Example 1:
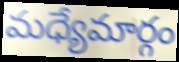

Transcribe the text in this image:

మధ్యేమార్గం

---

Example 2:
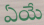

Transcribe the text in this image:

ఏయే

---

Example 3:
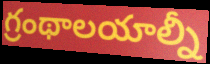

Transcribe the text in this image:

గ్రంథాలయాల్నీ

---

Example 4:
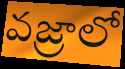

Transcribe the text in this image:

వజ్రాలో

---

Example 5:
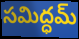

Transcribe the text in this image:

సమిద్ధమ్